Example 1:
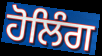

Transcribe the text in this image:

ਹੋਲਿੰਗ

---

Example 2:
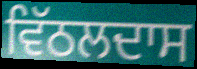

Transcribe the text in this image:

ਵਿੱਠਲਦਾਸ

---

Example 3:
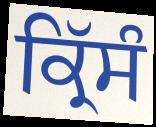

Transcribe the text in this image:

ਕ੍ਰਿੱਸੰ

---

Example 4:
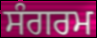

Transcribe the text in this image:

ਸੰਗਰਮ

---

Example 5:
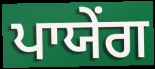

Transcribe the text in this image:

ਪਾਯੇਂਗ